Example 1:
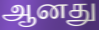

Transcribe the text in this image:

ஆனது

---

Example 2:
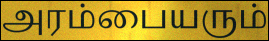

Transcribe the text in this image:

அரம்பையரும்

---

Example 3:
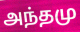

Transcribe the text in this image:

அந்தமு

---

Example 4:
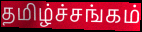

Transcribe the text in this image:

தமிழ்ச்சங்கம்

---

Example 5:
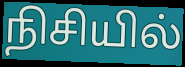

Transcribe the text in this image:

நிசியில்